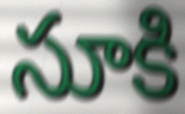
సూకి